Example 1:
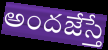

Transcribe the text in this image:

అందజేస్తే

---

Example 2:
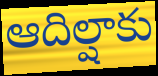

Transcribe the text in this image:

ఆదిల్షాకు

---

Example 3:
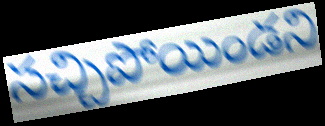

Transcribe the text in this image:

సచ్చిపోయిండని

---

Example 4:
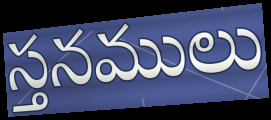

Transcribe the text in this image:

స్తనములు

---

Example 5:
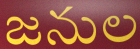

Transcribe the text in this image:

జనుల